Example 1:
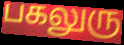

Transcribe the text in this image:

பகலுரு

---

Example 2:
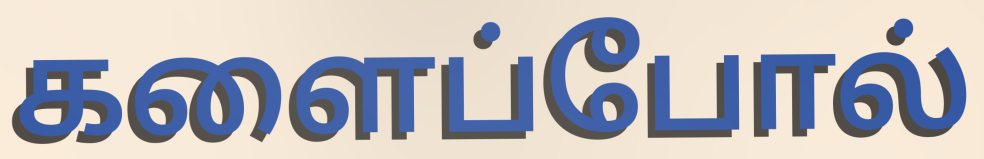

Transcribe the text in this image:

களைப்போல்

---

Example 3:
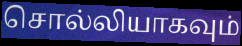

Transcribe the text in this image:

சொல்லியாகவும்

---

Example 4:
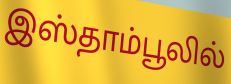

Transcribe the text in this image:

இஸ்தாம்பூலில்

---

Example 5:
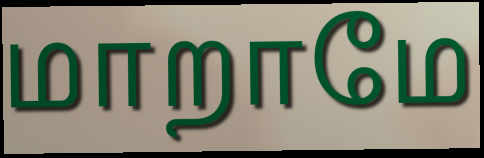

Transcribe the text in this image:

மாறாமே